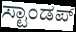
ಸ್ಟಾಂಡಪ್